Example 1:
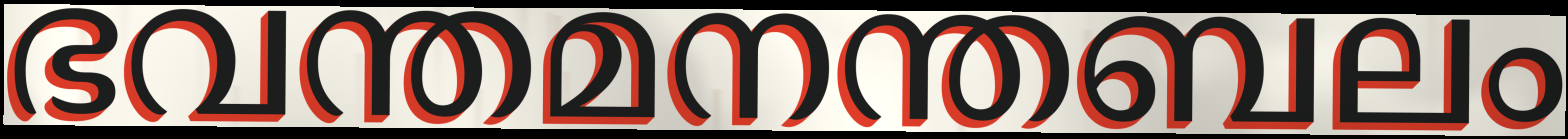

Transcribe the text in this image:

ഭവന്തമനന്തബലം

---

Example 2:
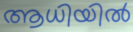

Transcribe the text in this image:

ആധിയിൽ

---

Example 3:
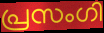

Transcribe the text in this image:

പ്രസംഗി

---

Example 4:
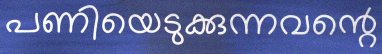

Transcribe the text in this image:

പണിയെടുക്കുന്നവന്റെ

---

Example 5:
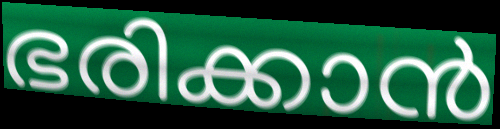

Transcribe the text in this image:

ഭരിക്കാൻ